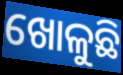
ଖୋଳୁଛି